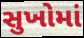
સુખોમાં